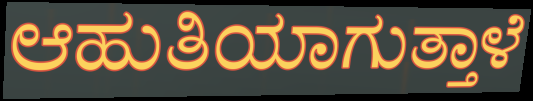
ಆಹುತಿಯಾಗುತ್ತಾಳೆ